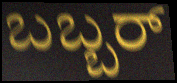
ಬಬ್ಬರ್